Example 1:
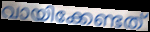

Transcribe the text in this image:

വായിക്കേണ്ടത്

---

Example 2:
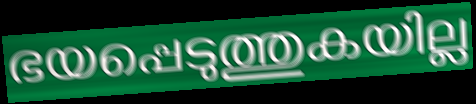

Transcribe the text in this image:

ഭയപ്പെടുത്തുകയില്ല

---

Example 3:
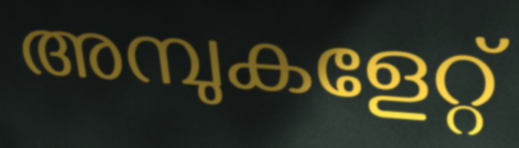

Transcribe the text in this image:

അമ്പുകളേറ്റ്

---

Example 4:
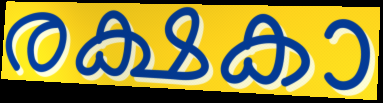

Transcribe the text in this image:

രക്ഷകാ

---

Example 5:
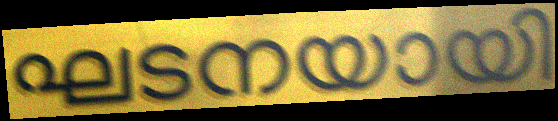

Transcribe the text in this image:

ഘടനയായി